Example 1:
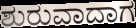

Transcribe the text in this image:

ಶುರುವಾದಾಗ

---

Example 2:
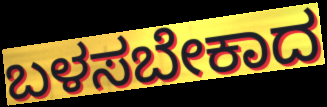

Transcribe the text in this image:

ಬಳಸಬೇಕಾದ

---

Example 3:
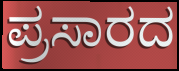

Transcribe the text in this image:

ಪ್ರಸಾರದ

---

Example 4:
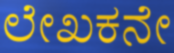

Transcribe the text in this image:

ಲೇಖಕನೇ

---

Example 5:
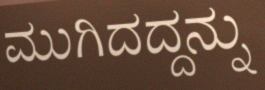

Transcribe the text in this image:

ಮುಗಿದದ್ದನ್ನು